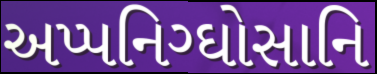
અપ્પનિગ્ઘોસાનિ